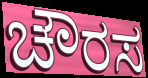
ಚೌರಸ